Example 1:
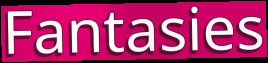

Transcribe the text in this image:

Fantasies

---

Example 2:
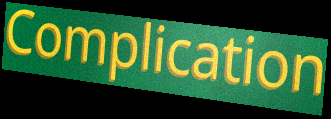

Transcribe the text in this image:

Complication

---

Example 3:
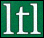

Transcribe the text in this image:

ltl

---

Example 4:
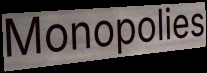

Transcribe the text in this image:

Monopolies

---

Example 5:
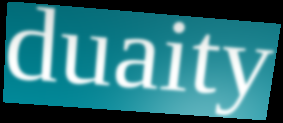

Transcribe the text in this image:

duaity